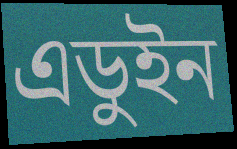
এডুইন